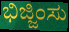
ಭಿಜ್ಜಿಂಸು